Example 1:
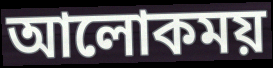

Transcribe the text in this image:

আলোকময়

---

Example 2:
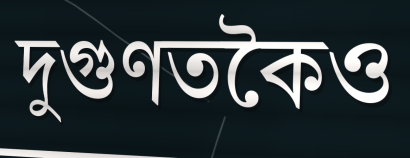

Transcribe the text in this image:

দুগুণতকৈও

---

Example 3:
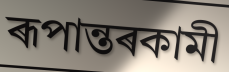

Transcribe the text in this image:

ৰূপান্তৰকামী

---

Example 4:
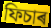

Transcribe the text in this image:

ফিচাৰ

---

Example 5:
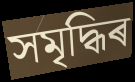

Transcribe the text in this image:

সমৃদ্ধিৰ